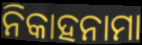
ନିକାହନାମା